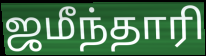
ஜமீந்தாரி